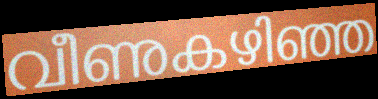
വീണുകഴിഞ്ഞ